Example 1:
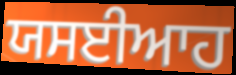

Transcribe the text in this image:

ਯਸਈਆਹ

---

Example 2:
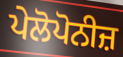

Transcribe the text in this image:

ਪੇਲੋਪੋਨੀਜ਼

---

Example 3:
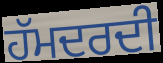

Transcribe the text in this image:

ਹੱਮਦਰਦੀ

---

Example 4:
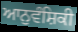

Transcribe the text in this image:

ਆਨੁਵੰਸ਼ਿਕੀ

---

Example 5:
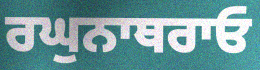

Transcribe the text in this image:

ਰਘੁਨਾਥਰਾਓ